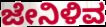
ಜೇನಿಳಿವ